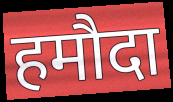
हमौदा